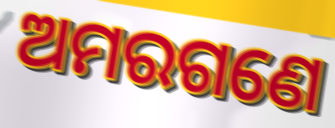
ଅମରଗଣେ